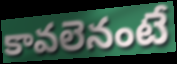
కావలెనంటే